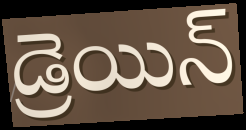
డ్రెయిన్